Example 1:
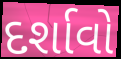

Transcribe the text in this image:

દર્શાવો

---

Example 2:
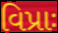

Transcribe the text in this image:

વિપ્રાઃ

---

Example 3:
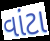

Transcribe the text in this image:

વાંટા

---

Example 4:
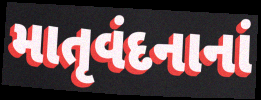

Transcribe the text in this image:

માતૃવંદનાનાં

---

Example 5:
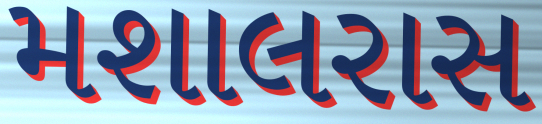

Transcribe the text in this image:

મશાલરાસ